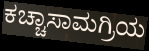
ಕಚ್ಚಾಸಾಮಗ್ರಿಯ